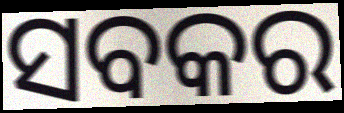
ସବକର